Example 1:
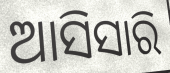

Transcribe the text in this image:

ଆସିସାରି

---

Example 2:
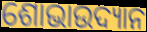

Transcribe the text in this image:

ଶୋଭାଉଦ୍ୟାନ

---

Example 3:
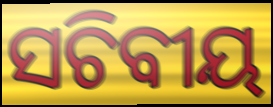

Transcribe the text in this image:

ସଚିବୀୟ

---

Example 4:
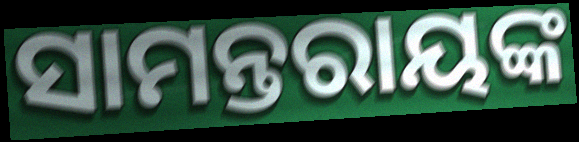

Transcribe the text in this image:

ସାମନ୍ତରାୟଙ୍କ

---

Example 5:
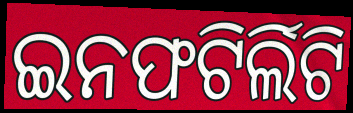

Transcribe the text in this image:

ଇନଫଟିର୍ଲିଟି